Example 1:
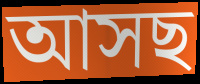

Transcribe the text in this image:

আসছ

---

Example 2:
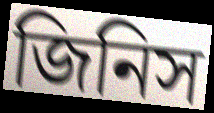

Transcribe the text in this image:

জিনিস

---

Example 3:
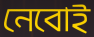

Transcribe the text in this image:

নেবোই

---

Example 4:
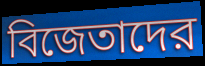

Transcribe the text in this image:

বিজেতাদের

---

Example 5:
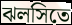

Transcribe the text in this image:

ঝলসিতে